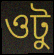
ওটু